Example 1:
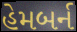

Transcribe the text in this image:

હેમબર્ન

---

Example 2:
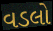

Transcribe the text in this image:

વડલો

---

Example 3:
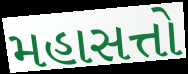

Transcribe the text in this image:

મહાસત્તો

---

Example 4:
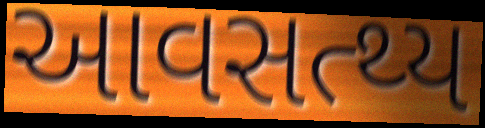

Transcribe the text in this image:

આવસત્થ્ય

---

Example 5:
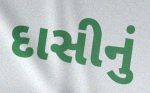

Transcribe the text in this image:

દાસીનું